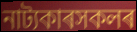
নাট্যকাৰসকলৰ